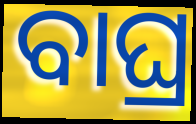
ବାଘ୍ର